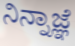
ನಿನ್ನಾಜ್ಞೆ